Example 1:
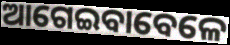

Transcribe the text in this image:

ଆଗେଇବାବେଳେ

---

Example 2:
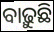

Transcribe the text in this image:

ବାଢ଼ୁଛି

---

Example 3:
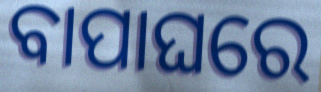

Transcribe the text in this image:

ବାପାଘରେ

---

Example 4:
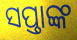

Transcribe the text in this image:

ସପ୍ତାଙ୍କ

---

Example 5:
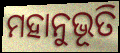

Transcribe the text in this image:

ମହାନୁଭୂତି